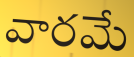
వారమే